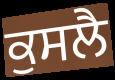
ਕੁਸਲੈ